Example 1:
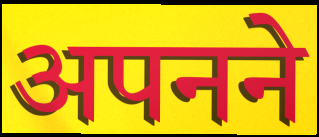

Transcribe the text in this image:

अपनने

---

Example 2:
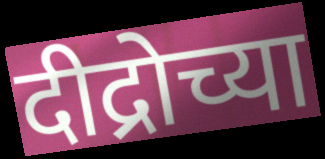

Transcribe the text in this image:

दीद्रोच्या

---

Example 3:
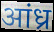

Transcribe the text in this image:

आंध्र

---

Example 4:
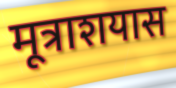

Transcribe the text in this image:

मूत्राशयास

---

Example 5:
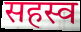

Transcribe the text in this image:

सहस्व